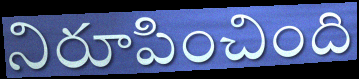
నిరూపించింది